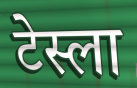
टेस्ला